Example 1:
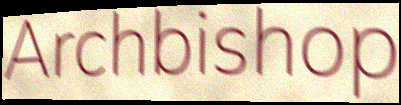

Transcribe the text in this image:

Archbishop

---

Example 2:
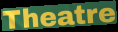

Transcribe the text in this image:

Theatre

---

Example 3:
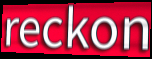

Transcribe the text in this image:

reckon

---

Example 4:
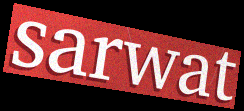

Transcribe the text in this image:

sarwat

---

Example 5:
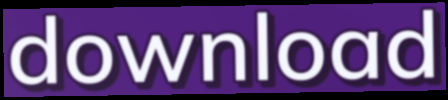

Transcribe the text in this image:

download